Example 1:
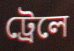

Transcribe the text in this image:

ট্রেলে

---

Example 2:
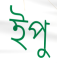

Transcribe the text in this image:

ইপু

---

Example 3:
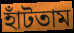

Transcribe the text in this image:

হাঁটতাম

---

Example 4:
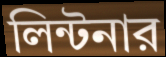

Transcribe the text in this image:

লিন্টনার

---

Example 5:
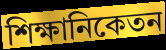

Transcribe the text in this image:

শিক্ষানিকেতন